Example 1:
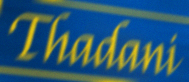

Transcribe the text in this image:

Thadani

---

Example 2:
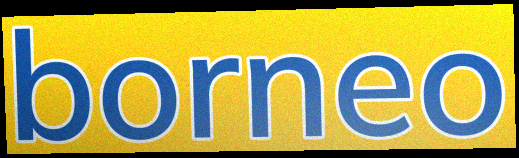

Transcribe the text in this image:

borneo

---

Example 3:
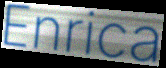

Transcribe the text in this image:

Enrica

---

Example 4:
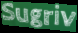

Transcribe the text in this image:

Sugriv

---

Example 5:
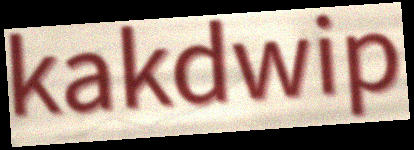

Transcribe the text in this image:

kakdwip